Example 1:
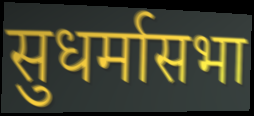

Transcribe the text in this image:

सुधर्मासभा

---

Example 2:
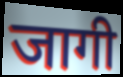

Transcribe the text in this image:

जागी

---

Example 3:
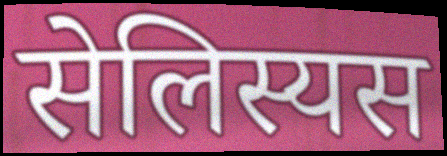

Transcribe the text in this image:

सेलिस्यस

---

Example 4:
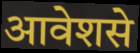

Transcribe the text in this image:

आवेशसे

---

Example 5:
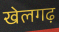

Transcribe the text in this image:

खेलगढ़